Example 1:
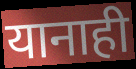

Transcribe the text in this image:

यानाही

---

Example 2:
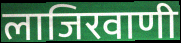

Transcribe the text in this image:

लाजिरवाणी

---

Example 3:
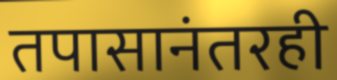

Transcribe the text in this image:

तपासानंतरही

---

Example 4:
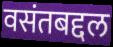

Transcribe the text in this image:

वसंतबद्दल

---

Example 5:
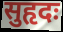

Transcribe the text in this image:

सुहृदः